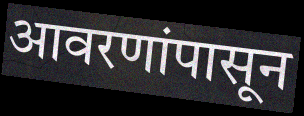
आवरणांपासून